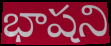
భాషని